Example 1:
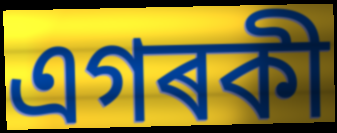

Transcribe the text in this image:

এগৰকী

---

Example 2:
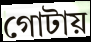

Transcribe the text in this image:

গোটায়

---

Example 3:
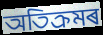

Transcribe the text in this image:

অতিক্ৰমৰ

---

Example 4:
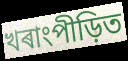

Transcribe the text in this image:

খৰাংপীড়িত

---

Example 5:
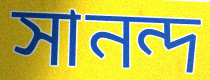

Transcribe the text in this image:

সানন্দ